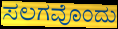
ಸಲಗವೊಂದು